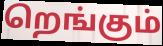
றெங்கும்